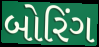
બોરિંગ